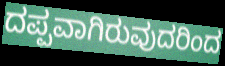
ದಪ್ಪವಾಗಿರುವುದರಿಂದ